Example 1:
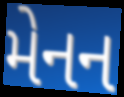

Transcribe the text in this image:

મેનન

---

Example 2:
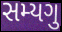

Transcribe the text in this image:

સમ્યગુ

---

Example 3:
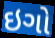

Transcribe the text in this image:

ઇગો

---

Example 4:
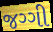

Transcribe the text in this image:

જગ્ગી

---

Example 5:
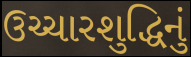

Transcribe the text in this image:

ઉચ્ચારશુદ્ધિનું